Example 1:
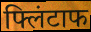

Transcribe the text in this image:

फ्लिंटाफ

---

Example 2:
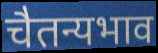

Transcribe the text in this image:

चैतन्यभाव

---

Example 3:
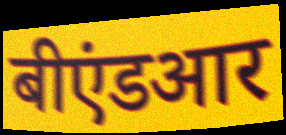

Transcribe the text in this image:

बीएंडआर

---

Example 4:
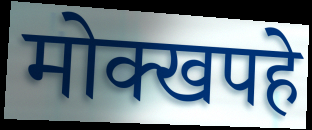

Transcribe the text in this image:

मोक्खपहे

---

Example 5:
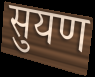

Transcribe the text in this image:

सुयण